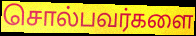
சொல்பவர்களை